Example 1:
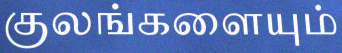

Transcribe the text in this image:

குலங்களையும்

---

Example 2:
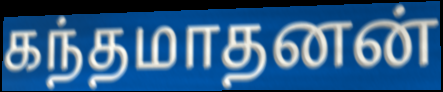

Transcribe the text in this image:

கந்தமாதனன்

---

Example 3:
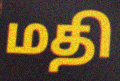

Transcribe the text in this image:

மதி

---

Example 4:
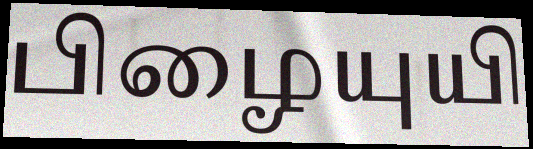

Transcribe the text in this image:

பிழையுயி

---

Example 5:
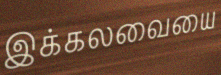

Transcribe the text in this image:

இக்கலவையை